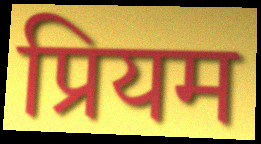
प्रियम